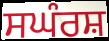
ਸਘੰਰਸ਼